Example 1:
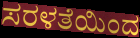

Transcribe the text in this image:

ಸರಳತೆಯಿಂದ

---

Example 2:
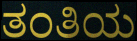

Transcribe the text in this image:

ತಂತಿಯ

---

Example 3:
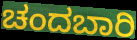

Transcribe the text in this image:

ಚಂದಬಾರಿ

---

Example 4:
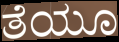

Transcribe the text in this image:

ತೆಯೂ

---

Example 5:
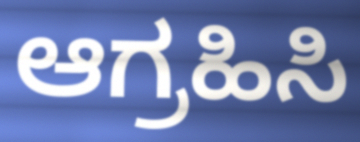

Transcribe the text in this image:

ಆಗ್ರಹಿಸಿ